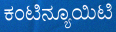
ಕಂಟಿನ್ಯೂಯಿಟಿ